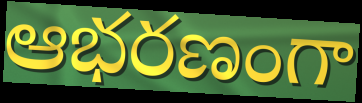
ఆభరణంగా